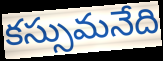
కస్సుమనేది